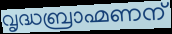
വൃദ്ധബ്രാഹ്മണന്